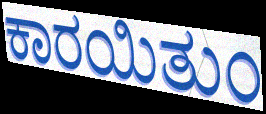
ಕಾರಯಿತುಂ